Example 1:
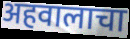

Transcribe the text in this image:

अहवालाचा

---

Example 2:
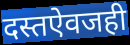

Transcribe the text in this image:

दस्तऐवजही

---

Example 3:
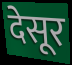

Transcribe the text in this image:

देसूर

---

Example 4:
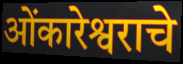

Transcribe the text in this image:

ओंकारेश्वराचे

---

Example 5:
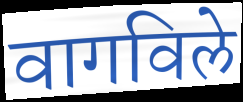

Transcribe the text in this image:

वागविले